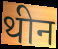
थीन